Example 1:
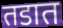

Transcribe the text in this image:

तडात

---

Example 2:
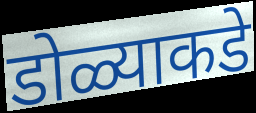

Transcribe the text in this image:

डोळ्याकडे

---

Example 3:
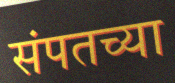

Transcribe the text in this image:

संपतच्या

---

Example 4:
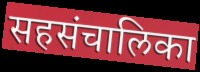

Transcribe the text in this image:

सहसंचालिका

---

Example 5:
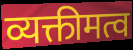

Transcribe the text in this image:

व्यक्तीमत्व